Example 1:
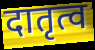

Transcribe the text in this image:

दातृत्व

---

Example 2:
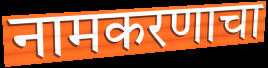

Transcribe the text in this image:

नामकरणाचा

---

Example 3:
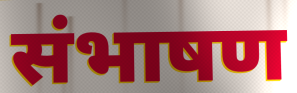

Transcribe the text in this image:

संभाषण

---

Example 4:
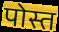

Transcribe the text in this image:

पोस्त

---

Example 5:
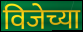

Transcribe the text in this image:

विजेच्या